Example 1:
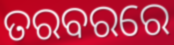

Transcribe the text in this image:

ତରବରରେ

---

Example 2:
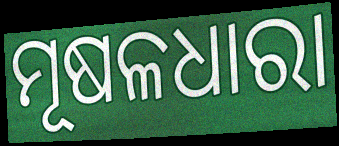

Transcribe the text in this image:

ମୂଷଳଧାରା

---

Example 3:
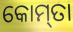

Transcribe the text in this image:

କୋମ୍‌ତା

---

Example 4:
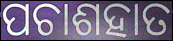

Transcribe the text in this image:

ପଚାଶହାତ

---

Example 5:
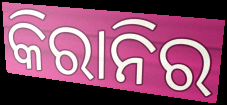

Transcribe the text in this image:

କିରାନିର